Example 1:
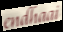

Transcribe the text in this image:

endhaai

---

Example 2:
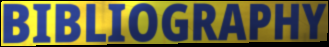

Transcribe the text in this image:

BIBLIOGRAPHY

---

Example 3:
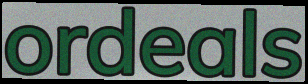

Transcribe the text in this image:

ordeals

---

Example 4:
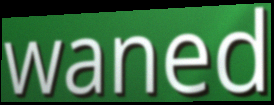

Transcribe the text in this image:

waned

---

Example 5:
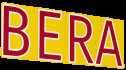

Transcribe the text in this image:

BERA